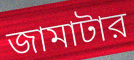
জামাটার